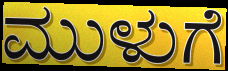
ಮುಳುಗೆ